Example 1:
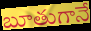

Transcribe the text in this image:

బూతుగానే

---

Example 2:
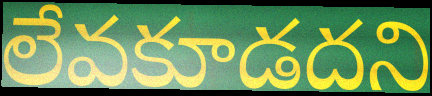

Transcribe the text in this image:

లేవకూడదని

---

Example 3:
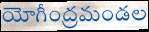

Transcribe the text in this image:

యోగీంద్రమండల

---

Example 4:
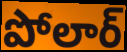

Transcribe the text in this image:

పోలార్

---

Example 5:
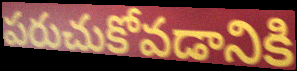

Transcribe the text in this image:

పరుచుకోవడానికి